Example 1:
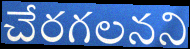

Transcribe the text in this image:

చేరగలనని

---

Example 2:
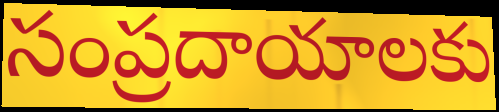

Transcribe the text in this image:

సంప్రదాయాలకు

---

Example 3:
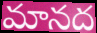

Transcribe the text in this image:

మానద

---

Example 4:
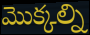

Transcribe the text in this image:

మొక్కల్ని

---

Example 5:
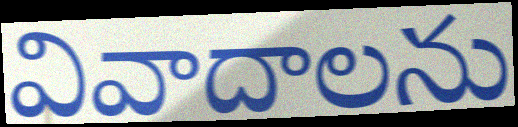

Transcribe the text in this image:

వివాదాలను